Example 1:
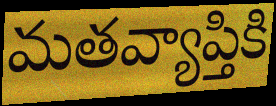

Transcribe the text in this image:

మతవ్యాప్తికి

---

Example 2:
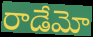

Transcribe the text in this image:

రాడేమో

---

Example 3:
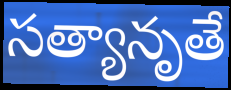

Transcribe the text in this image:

సత్యానృతే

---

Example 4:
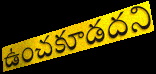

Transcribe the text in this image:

ఉంచకూడదని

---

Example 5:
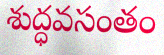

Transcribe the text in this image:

శుద్ధవసంతం